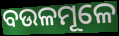
ବଉଳମୂଳେ